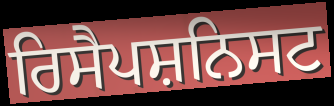
ਰਿਸੈਪਸ਼ਨਿਸਟ